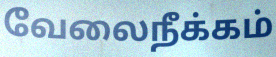
வேலைநீக்கம்